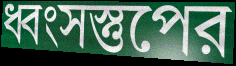
ধ্বংসস্তুপের